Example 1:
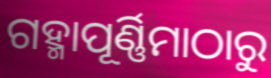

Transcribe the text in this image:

ଗହ୍ମାପୂର୍ଣ୍ଣିମାଠାରୁ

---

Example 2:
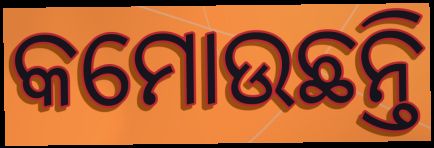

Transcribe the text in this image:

କମୋଉଛନ୍ତି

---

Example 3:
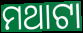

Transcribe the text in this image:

ମଥାଟା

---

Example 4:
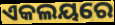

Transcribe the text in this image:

ଏକଲୟରେ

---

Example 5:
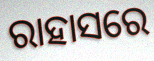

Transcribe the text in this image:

ରାହାସରେ